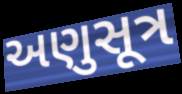
અણુસૂત્ર